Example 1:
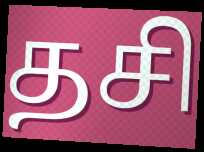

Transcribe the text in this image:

தசி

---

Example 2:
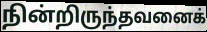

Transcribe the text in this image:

நின்றிருந்தவனைக்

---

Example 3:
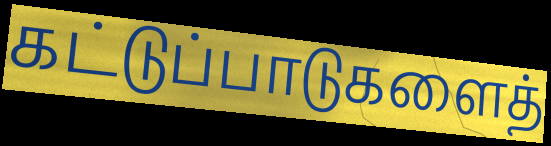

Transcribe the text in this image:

கட்டுப்பாடுகளைத்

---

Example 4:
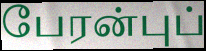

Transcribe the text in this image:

பேரன்புப்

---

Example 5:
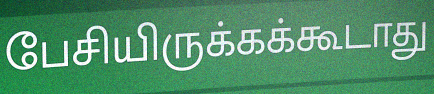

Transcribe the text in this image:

பேசியிருக்கக்கூடாது